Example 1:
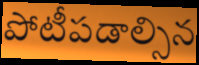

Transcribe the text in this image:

పోటీపడాల్సిన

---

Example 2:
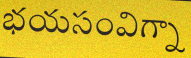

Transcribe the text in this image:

భయసంవిగ్నా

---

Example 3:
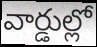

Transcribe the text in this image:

వార్డుల్లో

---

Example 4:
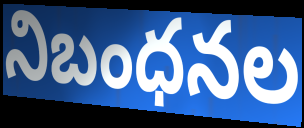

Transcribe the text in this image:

నిబంధనల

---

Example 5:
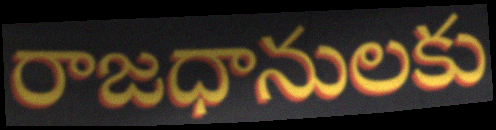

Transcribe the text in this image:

రాజధానులకు